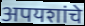
अपयशांचे